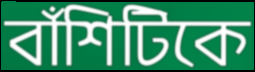
বাঁশিটিকে